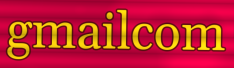
gmailcom